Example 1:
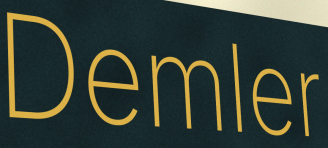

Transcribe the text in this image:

Demler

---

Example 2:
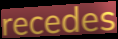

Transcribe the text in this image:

recedes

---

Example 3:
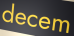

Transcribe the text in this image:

decem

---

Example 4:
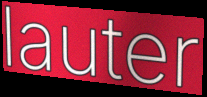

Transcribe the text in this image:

lauter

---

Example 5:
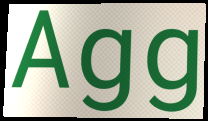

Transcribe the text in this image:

Agg